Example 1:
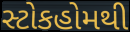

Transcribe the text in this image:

સ્ટોકહોમથી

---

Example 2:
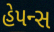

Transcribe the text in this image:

હેપન્સ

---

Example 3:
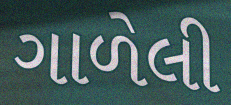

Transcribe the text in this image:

ગાળેલી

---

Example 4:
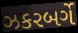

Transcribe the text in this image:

ઝકરબર્ગે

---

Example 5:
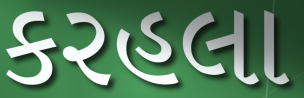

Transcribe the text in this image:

કરહલા